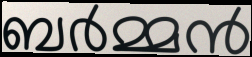
ബർമ്മൻ